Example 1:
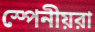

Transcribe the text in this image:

স্পেনীয়রা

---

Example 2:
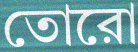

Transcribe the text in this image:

তোরো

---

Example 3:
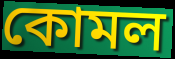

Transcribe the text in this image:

কোমল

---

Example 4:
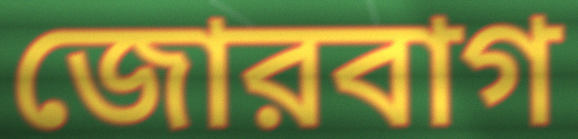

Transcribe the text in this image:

জোরবাগ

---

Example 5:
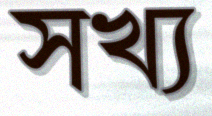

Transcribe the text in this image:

সখ্য